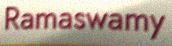
Ramaswamy